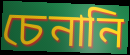
চেনানি